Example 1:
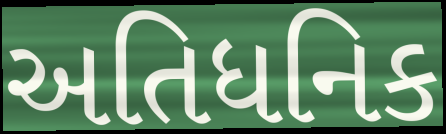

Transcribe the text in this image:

અતિધનિક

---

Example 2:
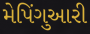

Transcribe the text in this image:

મેપિંગુઆરી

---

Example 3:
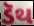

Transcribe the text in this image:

ડૅથ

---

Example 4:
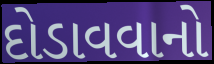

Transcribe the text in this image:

દોડાવવાનો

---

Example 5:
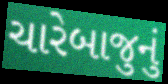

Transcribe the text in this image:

ચારેબાજુનું